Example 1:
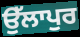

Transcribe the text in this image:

ਉੱਲਾਪੁਰ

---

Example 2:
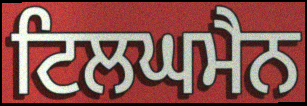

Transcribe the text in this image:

ਟਿਲਘਮੈਨ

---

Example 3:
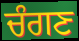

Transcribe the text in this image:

ਚੰਗਣ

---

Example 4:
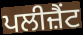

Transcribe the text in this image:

ਪਲੀਜ਼ੈਂਟ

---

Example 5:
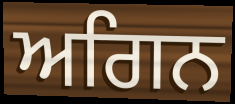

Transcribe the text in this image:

ਅਗਿਨ